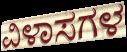
ವಿಳಾಸಗಳ